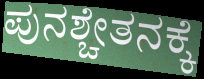
ಪುನಶ್ಚೇತನಕ್ಕೆ